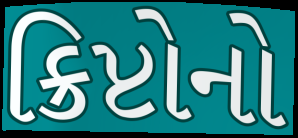
ક્રિપ્ટોનો